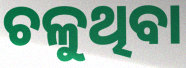
ଚଳୁଥିବା